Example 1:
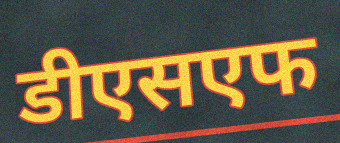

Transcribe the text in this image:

डीएसएफ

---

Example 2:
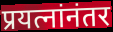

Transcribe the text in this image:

प्रयत्नांनंतर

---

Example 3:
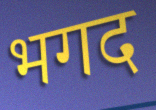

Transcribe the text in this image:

भगद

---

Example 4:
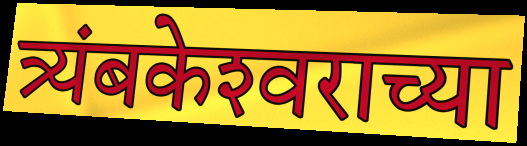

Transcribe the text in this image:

त्र्यंबकेश्वराच्या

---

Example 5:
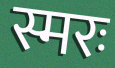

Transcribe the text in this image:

स्मरः